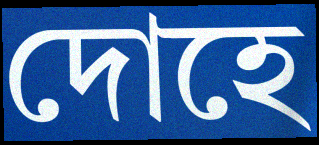
দোহে